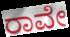
ರಾವೇ